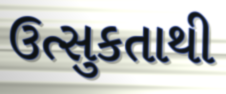
ઉત્સુકતાથી